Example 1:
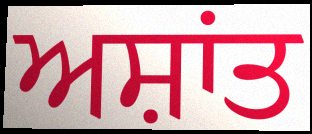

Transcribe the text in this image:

ਅਸ਼ਾਂਤ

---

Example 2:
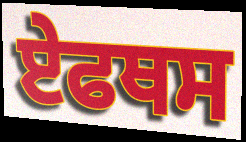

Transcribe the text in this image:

ਏਫਥਸ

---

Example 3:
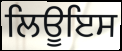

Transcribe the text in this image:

ਲਿਊਇਸ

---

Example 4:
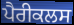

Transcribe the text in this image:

ਪੈਰੀਕਲਸ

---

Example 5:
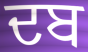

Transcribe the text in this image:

ਦਬ